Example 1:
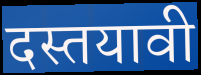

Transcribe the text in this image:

दस्तयावी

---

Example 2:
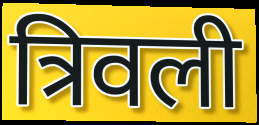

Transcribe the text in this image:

त्रिवली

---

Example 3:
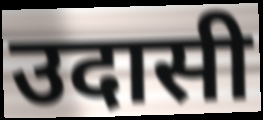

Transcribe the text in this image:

उदासी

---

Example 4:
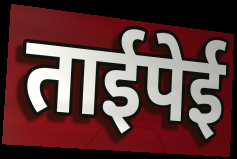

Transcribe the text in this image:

ताईपेई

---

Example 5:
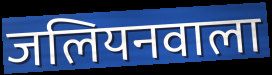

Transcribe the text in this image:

जलियनवाला